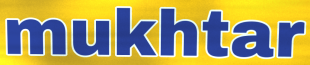
mukhtar